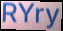
RYry